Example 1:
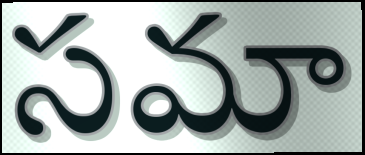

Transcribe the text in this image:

సమా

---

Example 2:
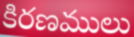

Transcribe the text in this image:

కిరణములు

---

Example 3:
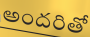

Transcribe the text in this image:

అందరితో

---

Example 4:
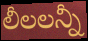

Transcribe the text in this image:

లీలలన్నీ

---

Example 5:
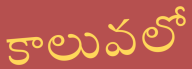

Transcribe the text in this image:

కాలువలో